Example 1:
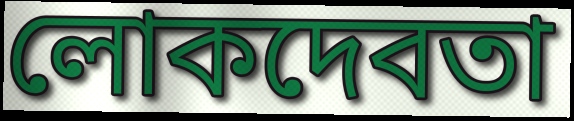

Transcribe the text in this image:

লোকদেবতা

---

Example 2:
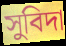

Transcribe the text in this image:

সুবিদা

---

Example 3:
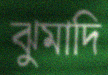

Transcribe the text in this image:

ঝুমাদি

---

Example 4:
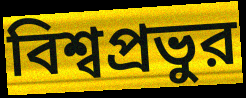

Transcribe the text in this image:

বিশ্বপ্রভুর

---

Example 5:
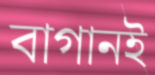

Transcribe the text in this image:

বাগানই